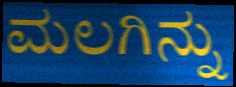
ಮಲಗಿನ್ನು